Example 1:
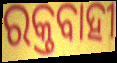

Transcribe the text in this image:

ରକ୍ତବାହୀ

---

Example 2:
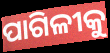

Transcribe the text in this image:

ପାଗିଳୀକୁ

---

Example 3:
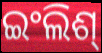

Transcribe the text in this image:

ଇଂଲିଶ୍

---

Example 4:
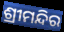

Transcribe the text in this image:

ଶ୍ରୀମନ୍ଦିର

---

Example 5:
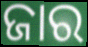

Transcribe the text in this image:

ଜାର